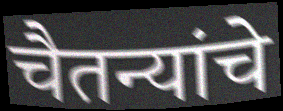
चैतन्यांचे